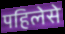
पहिलेसे